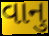
વાનુ